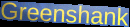
Greenshank